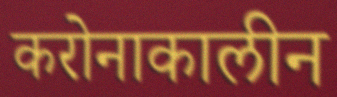
करोनाकालीन